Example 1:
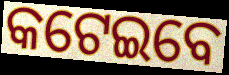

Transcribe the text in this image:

କଟେଇବେ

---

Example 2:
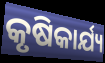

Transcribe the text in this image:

କୃଷିକାର୍ଯ୍ୟ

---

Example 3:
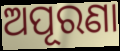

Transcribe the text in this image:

ଅପୂରଣା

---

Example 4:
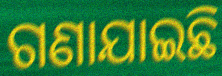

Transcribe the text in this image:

ଗଣାଯାଇଛି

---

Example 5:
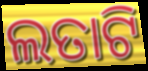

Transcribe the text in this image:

ଲତାଟି